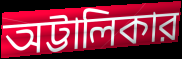
অট্টালিকার